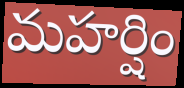
మహర్షిం